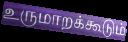
உருமாறக்கூடும்